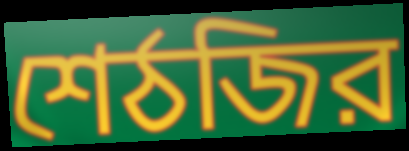
শেঠজির